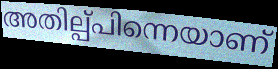
അതില്പ്പിന്നെയാണ്